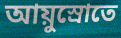
আয়ুস্রোতে